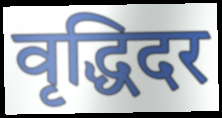
वृद्धिदर